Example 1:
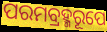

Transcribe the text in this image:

ପରମବ୍ରହ୍ମରୂପେ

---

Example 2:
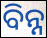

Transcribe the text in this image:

ବିନ୍ନ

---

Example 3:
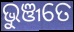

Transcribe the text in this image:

ଭୁଞ୍ଜତେ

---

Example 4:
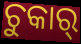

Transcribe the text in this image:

ଚୁକାର୍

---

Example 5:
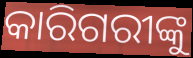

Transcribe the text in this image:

କାରିଗରୀଙ୍କୁ